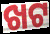
ଖଟ